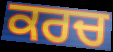
ਕਰਚ